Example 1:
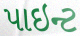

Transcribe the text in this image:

પાઇન્ટ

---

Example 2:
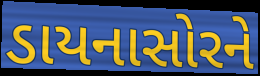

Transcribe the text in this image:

ડાયનાસોરને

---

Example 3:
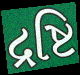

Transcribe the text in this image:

દ્રષ્ટિ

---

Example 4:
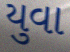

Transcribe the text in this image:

યુવા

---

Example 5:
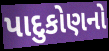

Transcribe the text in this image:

પાદુકોણનો